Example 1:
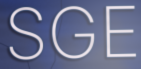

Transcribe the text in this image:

SGE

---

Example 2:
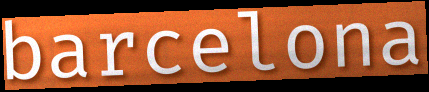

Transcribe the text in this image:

barcelona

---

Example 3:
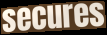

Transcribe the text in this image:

secures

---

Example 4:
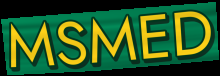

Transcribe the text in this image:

MSMED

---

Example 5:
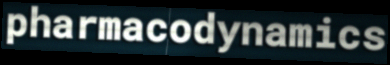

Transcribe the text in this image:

pharmacodynamics